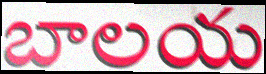
బాలయ